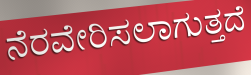
ನೆರವೇರಿಸಲಾಗುತ್ತದೆ